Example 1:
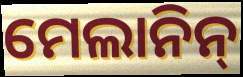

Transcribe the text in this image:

ମେଲାନିନ୍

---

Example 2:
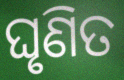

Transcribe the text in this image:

ଘୃଣିତ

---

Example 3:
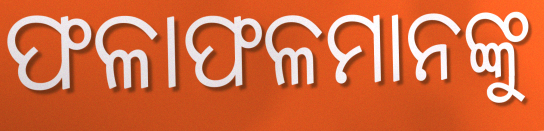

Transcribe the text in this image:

ଫଳାଫଳମାନଙ୍କୁ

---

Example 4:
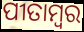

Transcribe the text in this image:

ପୀତାମ୍ୱର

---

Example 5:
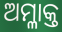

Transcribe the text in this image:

ଅମ୍ଳାକ୍ତ